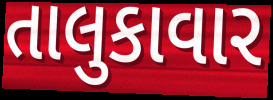
તાલુકાવાર